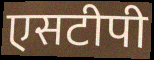
एसटीपी